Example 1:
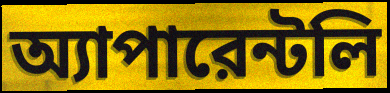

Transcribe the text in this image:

অ্যাপারেন্টলি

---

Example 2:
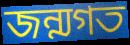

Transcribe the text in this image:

জন্মগত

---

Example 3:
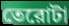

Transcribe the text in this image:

তেরোটা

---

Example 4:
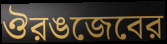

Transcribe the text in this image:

ঔরঙজেবের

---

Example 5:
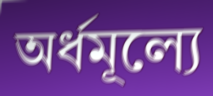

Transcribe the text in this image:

অর্ধমূল্যে